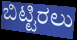
ಬಿಟ್ಟಿರಲು